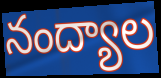
నంద్యాల